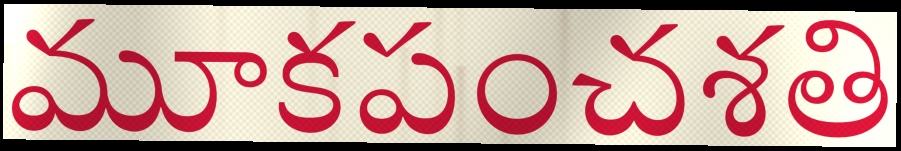
మూకపంచశతి